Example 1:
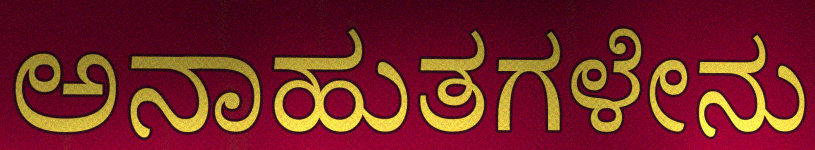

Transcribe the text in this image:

ಅನಾಹುತಗಳೇನು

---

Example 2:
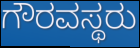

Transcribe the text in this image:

ಗೌರವಸ್ಥರು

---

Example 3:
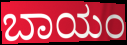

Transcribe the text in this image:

ಬಾಯಂ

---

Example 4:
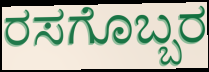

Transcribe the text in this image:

ರಸಗೊಬ್ಬರ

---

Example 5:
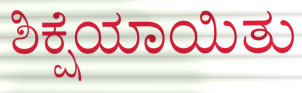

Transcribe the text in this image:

ಶಿಕ್ಷೆಯಾಯಿತು